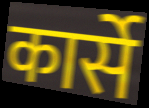
कार्से